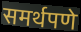
समर्थपणे